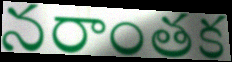
నరాంతక